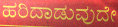
ಹರಿದಾಡುವುದೇ